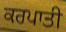
ਕਰਪਾਤੀ